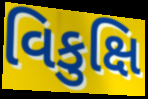
વિકુક્ષિ